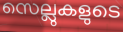
സെല്ലുകളുടെ